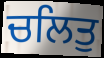
ਚਲਿਤੁ